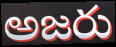
అజరు